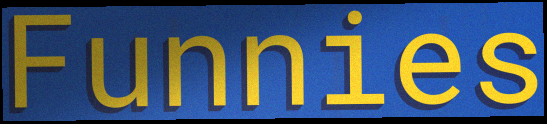
Funnies